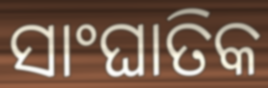
ସାଂଘାତିକ